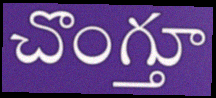
చొంగ్తూ